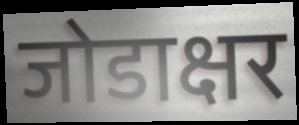
जोडाक्षर